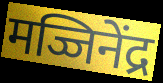
मज्जिनेंद्र